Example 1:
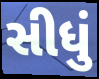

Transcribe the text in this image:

સીધું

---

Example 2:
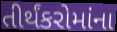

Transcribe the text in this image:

તીર્થંકરોમાંના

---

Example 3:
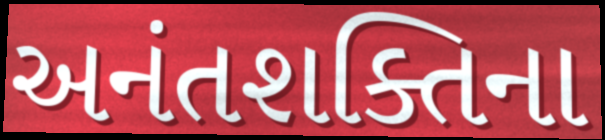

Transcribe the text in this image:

અનંતશક્તિના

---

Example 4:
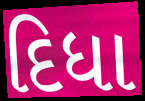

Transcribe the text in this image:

દિધા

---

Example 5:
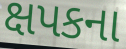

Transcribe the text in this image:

ક્ષપકના